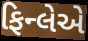
ફિન્લેએ